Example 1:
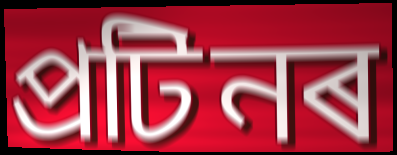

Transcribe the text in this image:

প্ৰটিনৰ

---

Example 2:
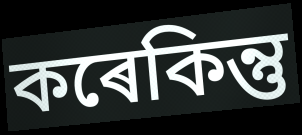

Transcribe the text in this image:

কৰেকিন্তু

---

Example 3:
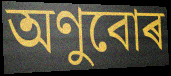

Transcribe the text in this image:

অণুবোৰ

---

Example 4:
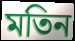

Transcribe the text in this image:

মতিন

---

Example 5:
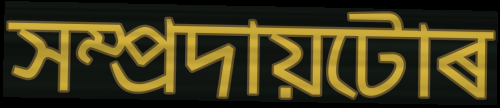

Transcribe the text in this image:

সম্প্ৰদায়টোৰ